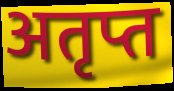
अतृप्त